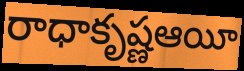
రాధాకృష్ణఆయీ